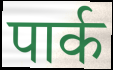
पार्क